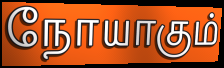
நோயாகும்